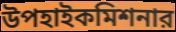
উপহাইকমিশনার